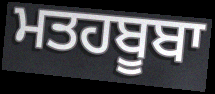
ਮਤਹਬੂਬਾ